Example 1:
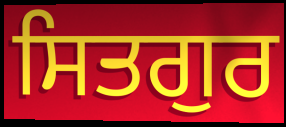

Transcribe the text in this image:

ਸਿਤਗੁਰ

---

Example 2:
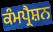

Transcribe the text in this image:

ਕੰਮਪ੍ਰੈਸ਼ਨ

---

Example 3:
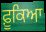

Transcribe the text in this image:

ਫ਼ੂਕਿਆ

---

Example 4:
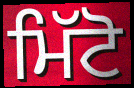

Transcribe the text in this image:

ਮਿੱਟੋ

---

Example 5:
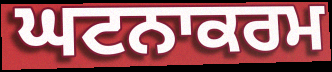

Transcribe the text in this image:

ਘਟਨਾਕਰਮ